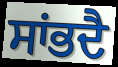
ਸਾਂਭਦੈ